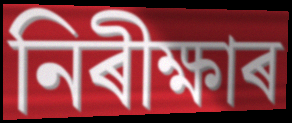
নিৰীক্ষাৰ